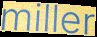
miller